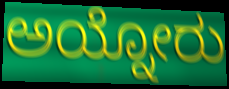
ಅಯ್ನೋರು